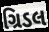
ગ્રિડલ